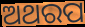
ଅଥରପ